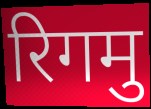
रिगमु